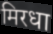
मिरधा